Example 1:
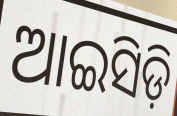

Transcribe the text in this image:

ଆଇସିଡ଼ି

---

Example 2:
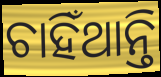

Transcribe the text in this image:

ଚାହିଁଥାନ୍ତି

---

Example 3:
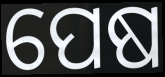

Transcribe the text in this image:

ପେଷ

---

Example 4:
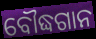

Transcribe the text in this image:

ବୌଦ୍ଧଗାନ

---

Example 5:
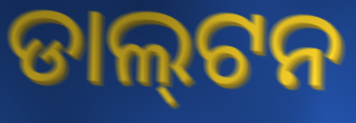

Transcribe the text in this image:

ଡାଲ୍‌ଟନ